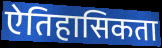
ऐतिहासिकता